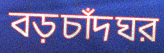
বড়চাঁদঘর